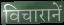
विचारानें